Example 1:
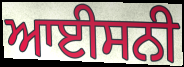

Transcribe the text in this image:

ਆਈਸਨੀ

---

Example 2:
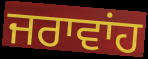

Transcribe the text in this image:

ਜਰਾਵਾਂਹ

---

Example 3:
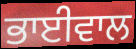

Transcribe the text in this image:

ਭਾਈਵਾਲ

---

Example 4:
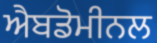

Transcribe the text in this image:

ਐਬਡੋਮੀਨਲ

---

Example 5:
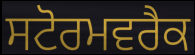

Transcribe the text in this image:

ਸਟੋਰਮਵਰੈਕ